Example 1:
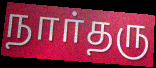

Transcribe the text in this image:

நார்தரு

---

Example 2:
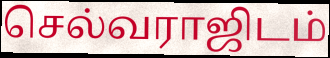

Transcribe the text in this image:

செல்வராஜிடம்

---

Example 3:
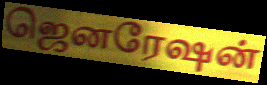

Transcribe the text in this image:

ஜெனரேஷன்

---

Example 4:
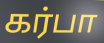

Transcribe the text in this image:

கர்பா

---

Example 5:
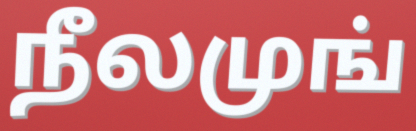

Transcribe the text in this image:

நீலமுங்